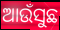
ଆଉଁସୁଛ